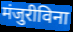
मंजुरीविना